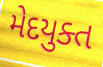
મેદયુક્ત